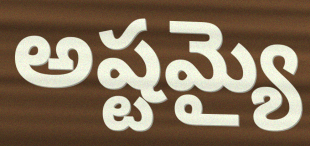
అష్టమ్యై